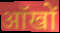
ऑखों